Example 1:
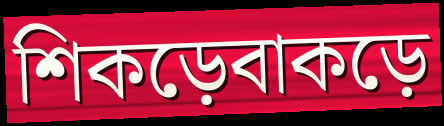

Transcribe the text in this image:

শিকড়েবাকড়ে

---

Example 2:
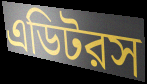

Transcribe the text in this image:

এডিটরস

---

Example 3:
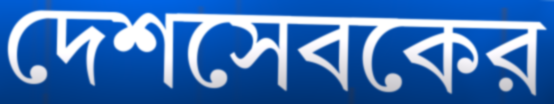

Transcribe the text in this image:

দেশসেবকের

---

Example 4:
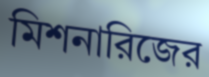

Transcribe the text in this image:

মিশনারিজের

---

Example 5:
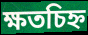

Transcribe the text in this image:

ক্ষতচিহ্ন